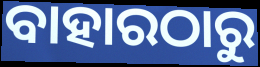
ବାହାରଠାରୁ